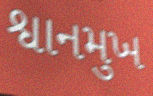
શ્વાનમુખ